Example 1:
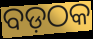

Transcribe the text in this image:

ବଡ଼ଠକ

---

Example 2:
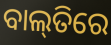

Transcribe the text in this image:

ବାଲ୍‌ତିରେ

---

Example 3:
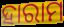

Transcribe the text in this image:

ହାରାମ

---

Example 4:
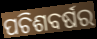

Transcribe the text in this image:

ପଚିଶବର୍ଷର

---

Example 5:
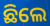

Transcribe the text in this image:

ଛିଲେ